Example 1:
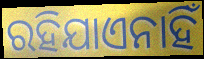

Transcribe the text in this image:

ରହିଯାଏନାହିଁ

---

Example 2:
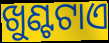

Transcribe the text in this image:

ଖୁଣ୍ଟଟାଏ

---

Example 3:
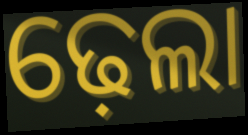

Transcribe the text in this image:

ଢ଼େଲା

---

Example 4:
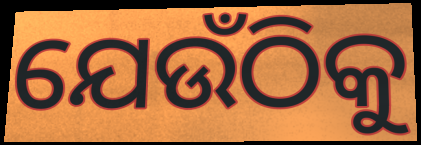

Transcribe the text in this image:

ଯେଉଁଠିକୁ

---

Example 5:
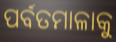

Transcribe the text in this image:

ପର୍ବତମାଳାକୁ